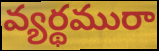
వ్యర్థమురా